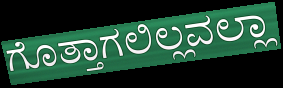
ಗೊತ್ತಾಗಲಿಲ್ಲವಲ್ಲಾ